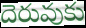
దెరువుకు